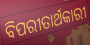
ବିପରୀତାର୍ଥକାରୀ